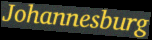
Johannesburg